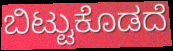
ಬಿಟ್ಟುಕೊಡದೆ